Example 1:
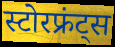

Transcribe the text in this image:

स्टोरफ्रंट्स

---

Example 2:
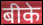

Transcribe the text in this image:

बीके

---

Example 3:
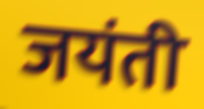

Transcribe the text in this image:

जयंती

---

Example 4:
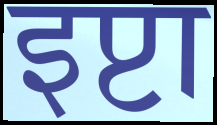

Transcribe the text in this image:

इप्टा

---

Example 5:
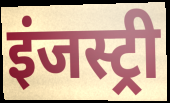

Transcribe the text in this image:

इंजस्ट्री